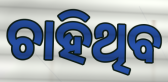
ଚାହିଥିବ